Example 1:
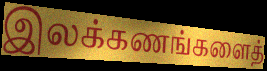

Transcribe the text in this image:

இலக்கணங்களைத்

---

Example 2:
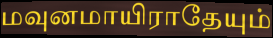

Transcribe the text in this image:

மவுனமாயிராதேயும்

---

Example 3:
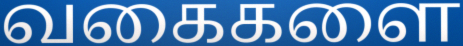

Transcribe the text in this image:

வகைகளை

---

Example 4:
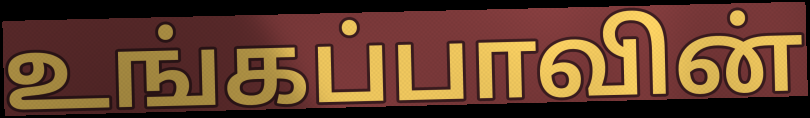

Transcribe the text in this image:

உங்கப்பாவின்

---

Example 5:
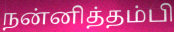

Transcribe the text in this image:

நன்னித்தம்பி